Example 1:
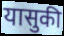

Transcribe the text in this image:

यासुकी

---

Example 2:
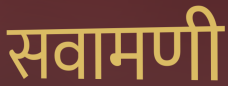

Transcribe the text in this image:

सवामणी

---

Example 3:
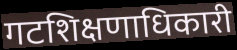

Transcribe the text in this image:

गटशिक्षणाधिकारी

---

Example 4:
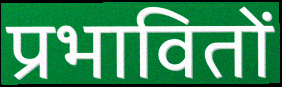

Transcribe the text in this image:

प्रभावितों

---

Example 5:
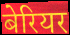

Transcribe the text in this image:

बेरियर